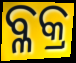
ବ୍ଳକ୍ର